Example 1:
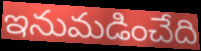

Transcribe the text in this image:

ఇనుమడించేది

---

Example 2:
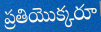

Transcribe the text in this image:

ప్రతియొక్కరూ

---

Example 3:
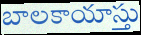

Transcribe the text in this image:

బాలకాయాస్తు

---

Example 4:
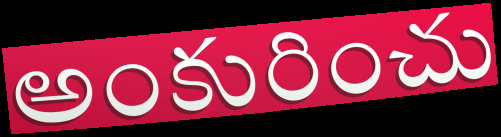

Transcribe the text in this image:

అంకురించు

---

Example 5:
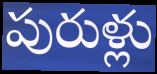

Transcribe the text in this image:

పురుళ్లు